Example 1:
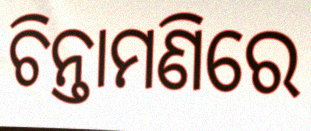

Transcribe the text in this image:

ଚିନ୍ତାମଣିରେ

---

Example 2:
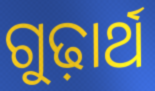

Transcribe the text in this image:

ଗୁଢ଼ାର୍ଥ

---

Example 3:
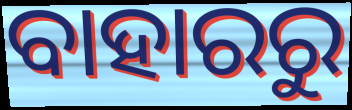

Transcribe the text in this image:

ବାହାରରୁ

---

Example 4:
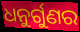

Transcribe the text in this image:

ଧନୁର୍ଗୁଣର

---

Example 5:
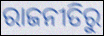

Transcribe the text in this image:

ରାଜନୀତିରୁ